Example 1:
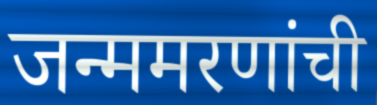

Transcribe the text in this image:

जन्ममरणांची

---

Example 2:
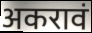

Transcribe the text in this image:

अकरावं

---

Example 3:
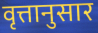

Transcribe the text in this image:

वृत्तानुसार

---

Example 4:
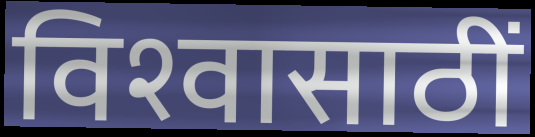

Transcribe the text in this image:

विश्वासाठीं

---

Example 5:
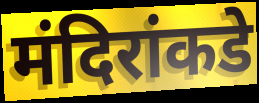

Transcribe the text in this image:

मंदिरांकडे